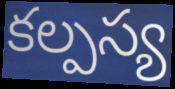
కల్పస్య